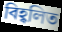
বিহ্বলিত